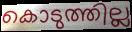
കൊടുത്തില്ല